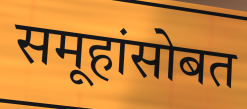
समूहांसोबत